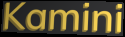
Kamini